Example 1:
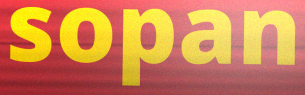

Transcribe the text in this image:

sopan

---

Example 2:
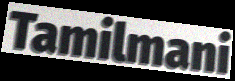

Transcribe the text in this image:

Tamilmani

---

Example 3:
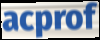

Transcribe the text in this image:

acprof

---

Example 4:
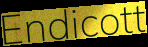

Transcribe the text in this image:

Endicott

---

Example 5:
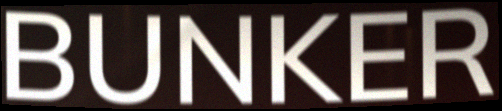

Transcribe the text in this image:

BUNKER